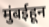
मुंबईहून